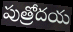
పుత్రోదయ